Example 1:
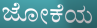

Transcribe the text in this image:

ಜೋಕೆಯ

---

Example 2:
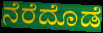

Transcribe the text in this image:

ನೆರೆದೊಡೆ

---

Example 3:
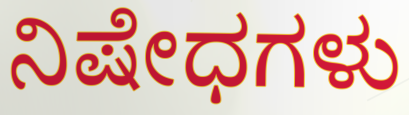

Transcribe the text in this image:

ನಿಷೇಧಗಳು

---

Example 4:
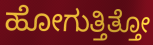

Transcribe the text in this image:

ಹೋಗುತ್ತಿತ್ತೋ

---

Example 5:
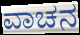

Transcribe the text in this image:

ವಾಚನ